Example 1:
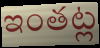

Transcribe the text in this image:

ఇంతట్ల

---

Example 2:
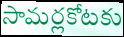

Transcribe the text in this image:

సామర్లకోటకు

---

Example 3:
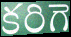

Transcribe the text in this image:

కరిగె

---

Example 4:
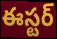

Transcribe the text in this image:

ఈస్టర్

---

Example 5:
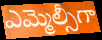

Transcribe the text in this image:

ఎమ్మెల్సీగా